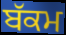
ਬੱਕਮ